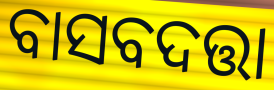
ବାସବଦତ୍ତା